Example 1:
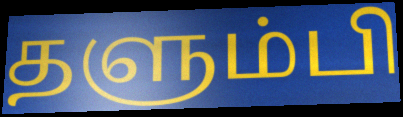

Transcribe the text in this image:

தளும்பி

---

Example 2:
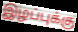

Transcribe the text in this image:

இழப்புக்கு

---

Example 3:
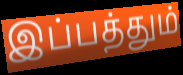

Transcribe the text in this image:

இப்பத்தும்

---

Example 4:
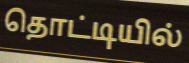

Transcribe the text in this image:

தொட்டியில்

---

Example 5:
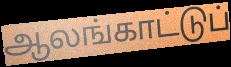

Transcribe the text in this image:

ஆலங்காட்டுப்